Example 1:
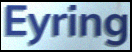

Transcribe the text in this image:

Eyring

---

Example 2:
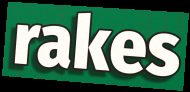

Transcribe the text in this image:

rakes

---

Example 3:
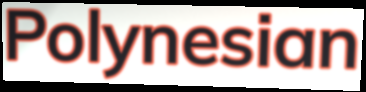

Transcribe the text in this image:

Polynesian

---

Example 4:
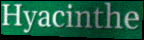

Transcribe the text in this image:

Hyacinthe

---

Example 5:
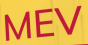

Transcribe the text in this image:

MEV